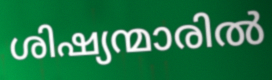
ശിഷ്യന്മാരിൽ